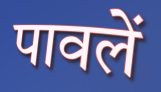
पावलें